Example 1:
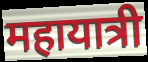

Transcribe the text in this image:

महायात्री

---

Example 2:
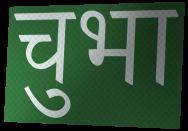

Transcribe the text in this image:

चुभा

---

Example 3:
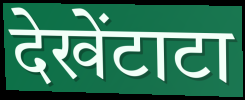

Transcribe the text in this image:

देखेंटाटा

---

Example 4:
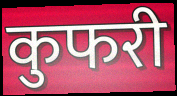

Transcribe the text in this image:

कुफरी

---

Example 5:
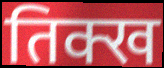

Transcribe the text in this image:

तिक्ख